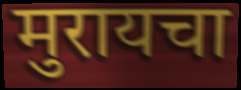
मुरायचा